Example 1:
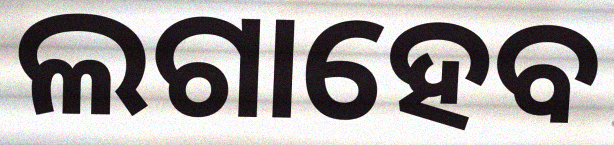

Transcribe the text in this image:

ଲଗାହେବ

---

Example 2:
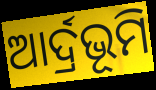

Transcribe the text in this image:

ଆର୍ଦ୍ରଭୂମି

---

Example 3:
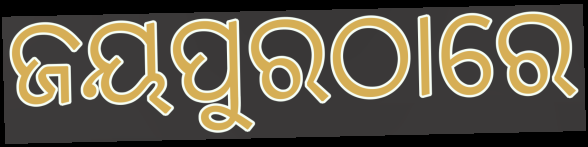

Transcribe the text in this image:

ଜୟପୁରଠାରେ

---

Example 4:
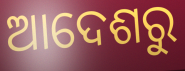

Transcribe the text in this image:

ଆଦେଶରୁ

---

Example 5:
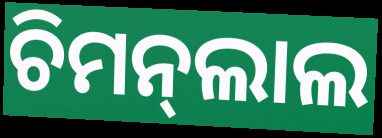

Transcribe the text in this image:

ଚିମନ୍‍ଲାଲ